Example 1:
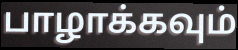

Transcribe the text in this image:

பாழாக்கவும்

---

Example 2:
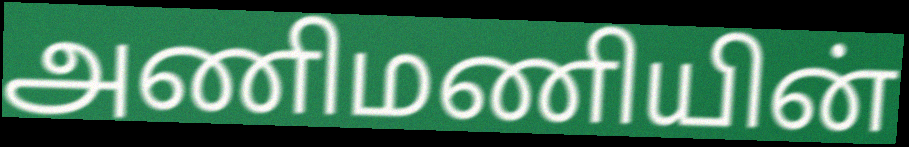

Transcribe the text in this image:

அணிமணியின்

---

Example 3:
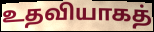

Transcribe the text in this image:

உதவியாகத்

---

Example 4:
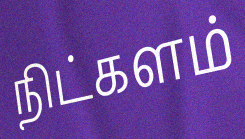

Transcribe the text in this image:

நிட்களம்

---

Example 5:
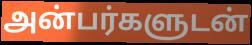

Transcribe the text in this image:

அன்பர்களுடன்